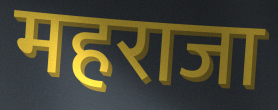
महराजा